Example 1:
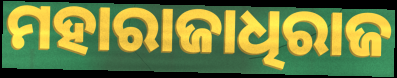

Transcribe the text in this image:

ମହାରାଜାଧିରାଜ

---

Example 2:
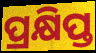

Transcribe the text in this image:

ପ୍ରକ୍ଷିପ୍ତ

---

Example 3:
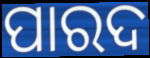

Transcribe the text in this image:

ପାରଦ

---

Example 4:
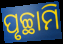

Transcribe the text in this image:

ପୃଚ୍ଛାମି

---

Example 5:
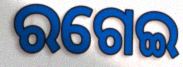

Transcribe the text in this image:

ରଗେଇ